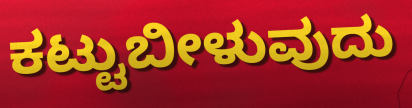
ಕಟ್ಟುಬೀಳುವುದು